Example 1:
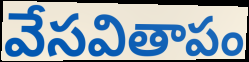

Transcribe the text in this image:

వేసవితాపం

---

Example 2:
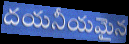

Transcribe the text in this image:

దయనీయమైన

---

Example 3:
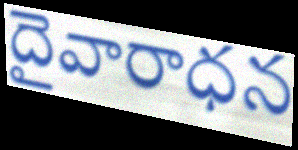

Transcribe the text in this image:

దైవారాధన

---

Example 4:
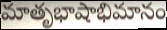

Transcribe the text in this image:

మాతృభాషాభిమానం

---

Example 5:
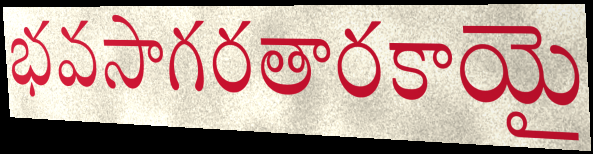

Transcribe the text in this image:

భవసాగరతారకాయై